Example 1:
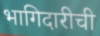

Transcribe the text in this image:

भागिदारीची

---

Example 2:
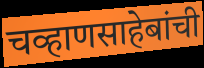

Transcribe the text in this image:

चव्हाणसाहेबांची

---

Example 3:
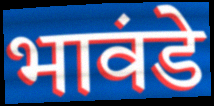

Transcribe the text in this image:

भावंडे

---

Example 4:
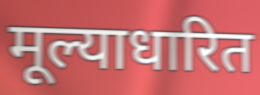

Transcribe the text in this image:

मूल्याधारित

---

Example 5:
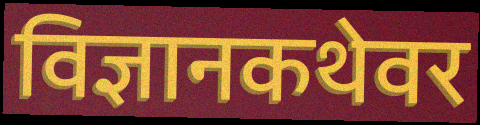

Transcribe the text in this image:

विज्ञानकथेवर